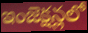
ఇంజెక్షన్లలో